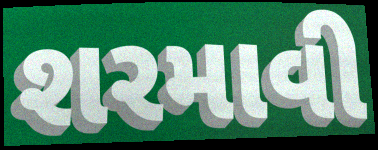
શરમાવી